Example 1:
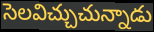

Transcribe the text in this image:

సెలవిచ్చుచున్నాడు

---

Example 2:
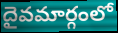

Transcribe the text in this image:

దైవమార్గంలో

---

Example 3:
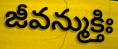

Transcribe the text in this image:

జీవన్ముక్తిః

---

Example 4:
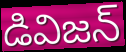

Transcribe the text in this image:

డివిజన్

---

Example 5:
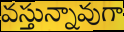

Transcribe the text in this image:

వస్తున్నావుగా